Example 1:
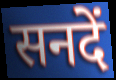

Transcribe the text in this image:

सनदें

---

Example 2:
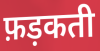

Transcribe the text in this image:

फ़ड़कती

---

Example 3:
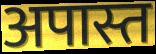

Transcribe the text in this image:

अपास्‍त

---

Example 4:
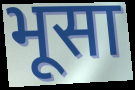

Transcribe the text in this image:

भूसा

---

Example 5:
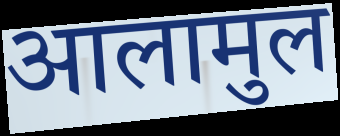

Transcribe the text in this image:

आलामुल